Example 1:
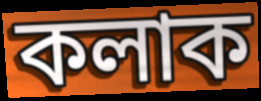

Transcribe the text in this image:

কলাক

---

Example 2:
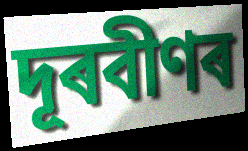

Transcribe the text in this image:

দূৰবীণৰ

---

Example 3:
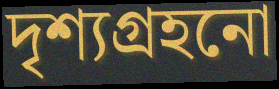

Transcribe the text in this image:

দৃশ্যগ্ৰহনো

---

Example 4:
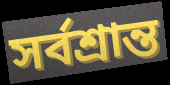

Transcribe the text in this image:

সৰ্বশ্ৰান্ত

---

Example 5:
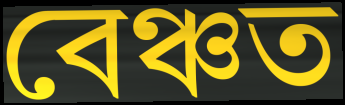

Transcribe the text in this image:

বেঞ্চত